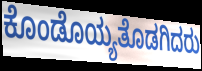
ಕೊಂಡೊಯ್ಯತೊಡಗಿದರು